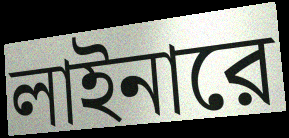
লাইনারে